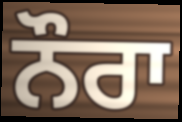
ਨੌਰਾ